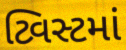
ટ્વિસ્ટમાં